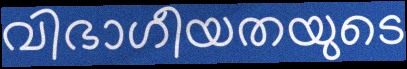
വിഭാഗീയതയുടെ